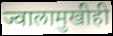
ज्वालामुखीही